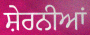
ਸ਼ੇਰਨੀਆਂ